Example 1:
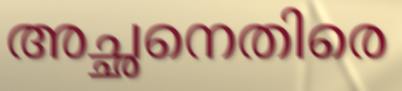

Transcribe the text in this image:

അച്ഛനെതിരെ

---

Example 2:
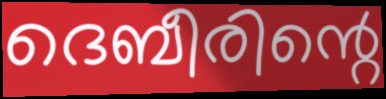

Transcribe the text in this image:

ദെബീരിന്റെ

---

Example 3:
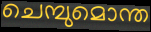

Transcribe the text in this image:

ചെമ്പുമൊന്ത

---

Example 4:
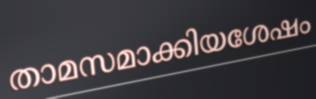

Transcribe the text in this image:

താമസമാക്കിയശേഷം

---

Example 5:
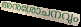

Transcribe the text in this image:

അനുശോചനവും